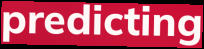
predicting